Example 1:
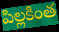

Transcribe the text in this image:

పిల్లకింత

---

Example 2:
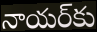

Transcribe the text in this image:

నాయర్‌కు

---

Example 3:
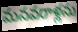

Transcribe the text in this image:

మనవరాళ్లను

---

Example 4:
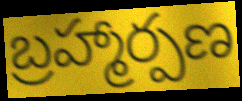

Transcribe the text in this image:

బ్రహ్మార్పణ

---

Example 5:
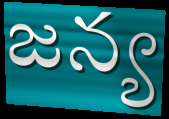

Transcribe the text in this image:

జన్య